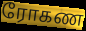
ரோகண